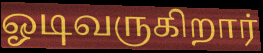
ஓடிவருகிறார்